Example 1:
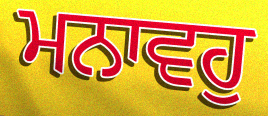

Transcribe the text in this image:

ਮਨਾਵਹੁ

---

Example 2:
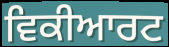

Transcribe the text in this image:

ਵਿਕੀਆਰਟ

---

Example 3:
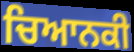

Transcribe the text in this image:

ਚਿਆਨਕੀ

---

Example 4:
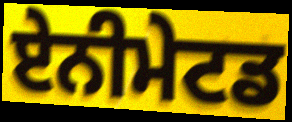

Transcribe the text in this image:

ਏਨੀਮੇਟਡ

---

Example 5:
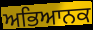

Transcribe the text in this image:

ਅਭਿਆਨਕ